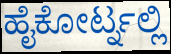
ಹೈಕೋರ್ಟ್ನಲ್ಲಿ